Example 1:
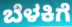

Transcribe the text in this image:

ಬೆಳಕಿಗೆ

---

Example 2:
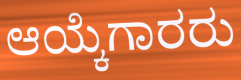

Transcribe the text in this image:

ಆಯ್ಕೆಗಾರರು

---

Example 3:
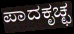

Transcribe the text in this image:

ಪಾದಕೃಚ್ಛ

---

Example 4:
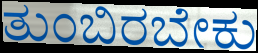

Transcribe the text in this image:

ತುಂಬಿರಬೇಕು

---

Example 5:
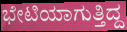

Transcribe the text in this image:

ಭೇಟಿಯಾಗುತ್ತಿದ್ದ